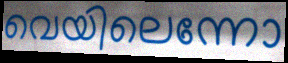
വെയിലെന്നോ